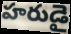
హరుడై